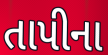
તાપીના